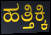
ಹತ್ತಿಕ್ಕಿ